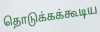
தொடுக்கக்கூடிய